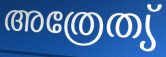
അത്രേത്യ്